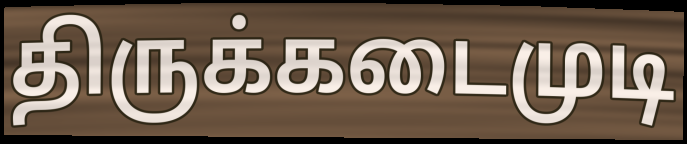
திருக்கடைமுடி